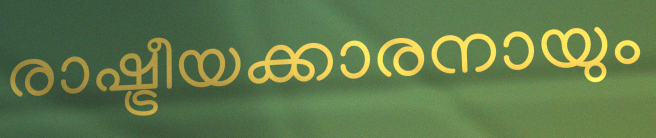
രാഷ്ട്രീയക്കാരനായും